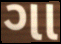
ગા